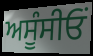
ਅਸੂੰਸੀਓਂ